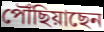
পৌঁছিয়াছেন